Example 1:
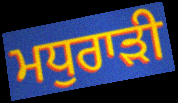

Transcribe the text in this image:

ਮਧੁਰਾੜੀ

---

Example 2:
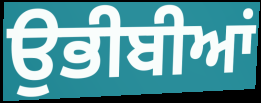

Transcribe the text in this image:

ਉਭੀਬੀਆਂ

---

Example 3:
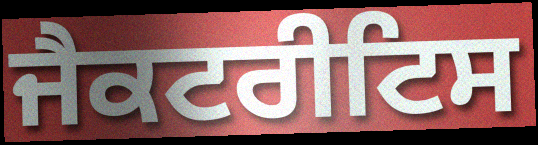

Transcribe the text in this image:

ਜੈਕਟਰੀਟਿਸ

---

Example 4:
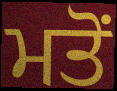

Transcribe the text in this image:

ਮਤੋਂ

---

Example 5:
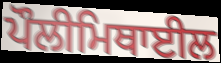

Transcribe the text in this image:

ਪੌਲੀਮਿਥਾਈਲ